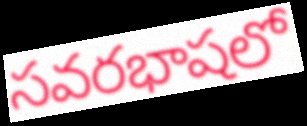
సవరభాషలో